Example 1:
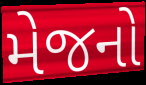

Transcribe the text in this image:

મેજનો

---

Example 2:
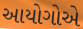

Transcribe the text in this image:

આયોગોએ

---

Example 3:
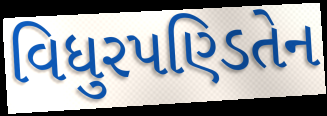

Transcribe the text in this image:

વિધુરપણ્ડિતેન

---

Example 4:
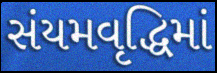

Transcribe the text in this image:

સંયમવૃદ્ધિમાં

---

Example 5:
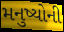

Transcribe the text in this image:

મનુષ્યોની